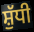
ਸ਼ੁੱਧੀ